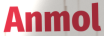
Anmol